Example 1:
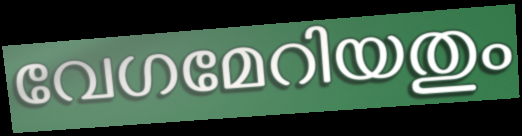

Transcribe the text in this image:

വേഗമേറിയതും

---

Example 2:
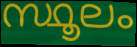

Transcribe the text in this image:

സ്ഥൂലം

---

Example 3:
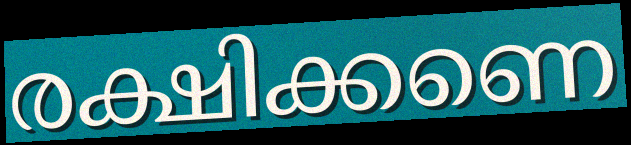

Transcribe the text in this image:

രക്ഷിക്കണെ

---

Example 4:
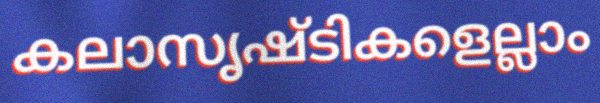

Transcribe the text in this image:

കലാസൃഷ്ടികളെല്ലാം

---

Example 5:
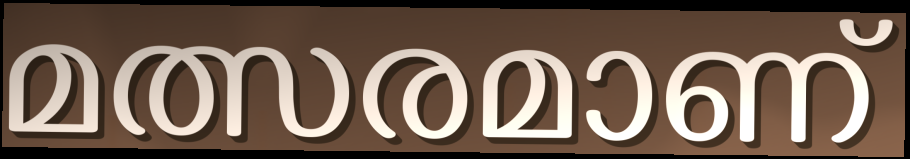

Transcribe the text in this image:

മത്സരമാണ്